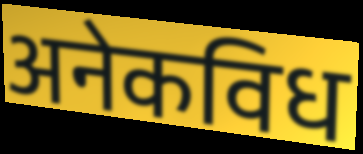
अनेकविध